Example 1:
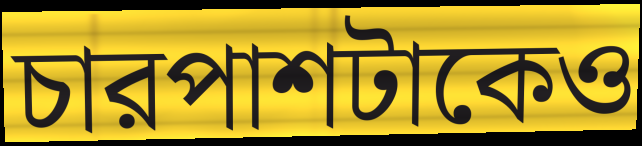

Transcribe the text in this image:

চারপাশটাকেও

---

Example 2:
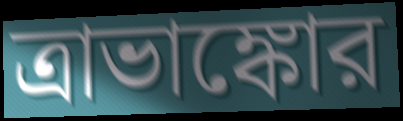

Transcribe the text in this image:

ত্রাভাঙ্কোর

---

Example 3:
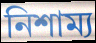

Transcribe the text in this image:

নিশাম্য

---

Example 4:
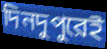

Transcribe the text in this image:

দিনদুপুরেই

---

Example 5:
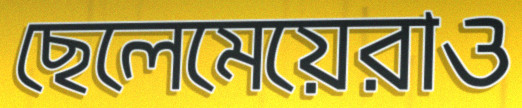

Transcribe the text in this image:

ছেলেমেয়েরাও